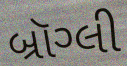
બ્રૉગ્લી